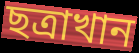
ছত্রাখান